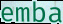
emba